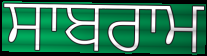
ਸਾਬਰਾਮ